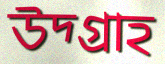
উদ্গ্রাহ